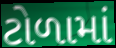
ટોળામાં